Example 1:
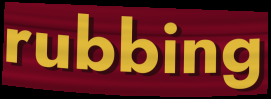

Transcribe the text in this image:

rubbing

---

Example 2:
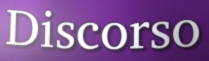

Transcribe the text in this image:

Discorso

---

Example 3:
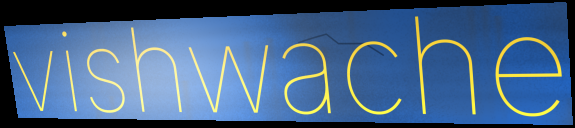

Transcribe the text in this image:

vishwache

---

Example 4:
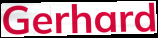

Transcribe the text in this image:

Gerhard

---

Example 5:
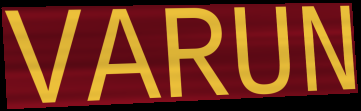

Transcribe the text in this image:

VARUN